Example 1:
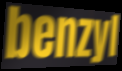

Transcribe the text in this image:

benzyl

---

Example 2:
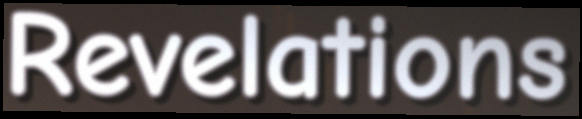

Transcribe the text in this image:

Revelations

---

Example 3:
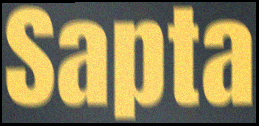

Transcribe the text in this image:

Sapta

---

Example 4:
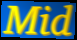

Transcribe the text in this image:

Mid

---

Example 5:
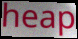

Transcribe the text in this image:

heap